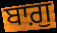
ਬਾਗ਼ੁ